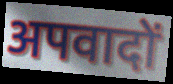
अपवादों